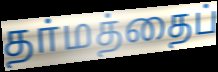
தர்மத்தைப்